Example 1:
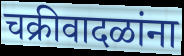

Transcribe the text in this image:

चक्रीवादळांना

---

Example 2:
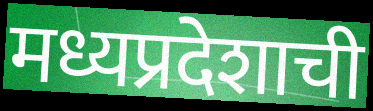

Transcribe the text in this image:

मध्यप्रदेशाची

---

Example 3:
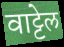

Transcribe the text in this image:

वाट्टेल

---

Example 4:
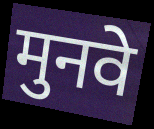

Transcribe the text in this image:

मुनवे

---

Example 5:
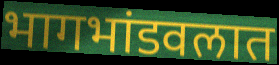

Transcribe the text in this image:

भागभांडवलात